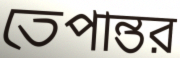
তেপান্তর